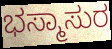
ಭಸ್ಮಾಸುರ